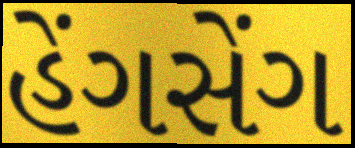
હેંગસેંગ